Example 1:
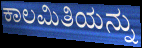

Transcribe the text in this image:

ಕಾಲಮಿತಿಯನ್ನು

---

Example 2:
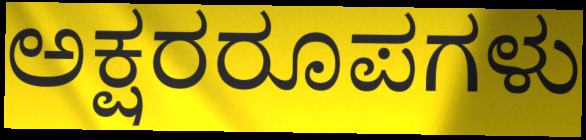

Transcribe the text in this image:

ಅಕ್ಷರರೂಪಗಳು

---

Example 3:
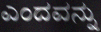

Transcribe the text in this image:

ಎಂದವನ್ನು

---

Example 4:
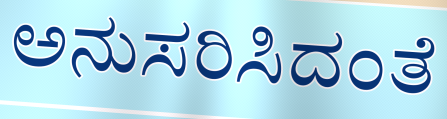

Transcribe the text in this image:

ಅನುಸರಿಸಿದಂತೆ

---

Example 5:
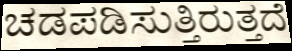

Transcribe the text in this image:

ಚಡಪಡಿಸುತ್ತಿರುತ್ತದೆ